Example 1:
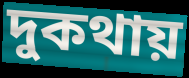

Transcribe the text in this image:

দুকথায়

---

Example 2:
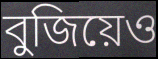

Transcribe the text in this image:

বুজিয়েও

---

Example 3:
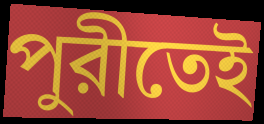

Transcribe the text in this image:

পুরীতেই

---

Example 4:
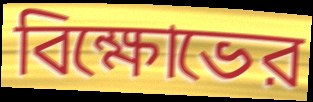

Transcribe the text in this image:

বিক্ষোভের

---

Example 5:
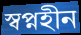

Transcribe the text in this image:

স্বপ্নহীন